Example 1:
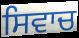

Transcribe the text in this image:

ਸਿਵਾਚ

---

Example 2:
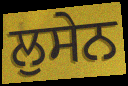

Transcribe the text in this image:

ਲੁਸੇਨ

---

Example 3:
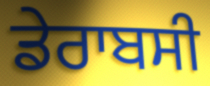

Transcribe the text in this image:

ਡੇਰਾਬਸੀ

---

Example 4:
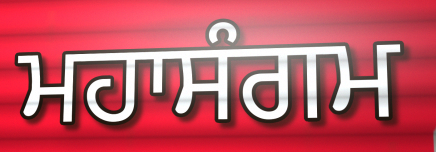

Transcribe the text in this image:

ਮਹਾਸੰਗਮ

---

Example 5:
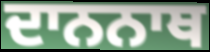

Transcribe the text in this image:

ਦਾਨਨਾਥ